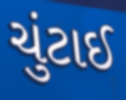
ચુંટાઈ